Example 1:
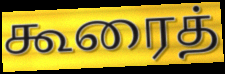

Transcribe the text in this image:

கூரைத்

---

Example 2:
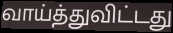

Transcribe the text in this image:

வாய்த்துவிட்டது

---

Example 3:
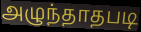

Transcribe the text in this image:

அழுந்தாதபடி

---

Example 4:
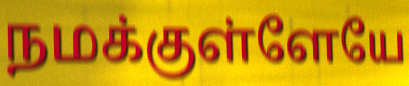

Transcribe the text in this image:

நமக்குள்ளேயே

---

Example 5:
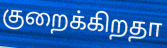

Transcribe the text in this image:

குறைக்கிறதா